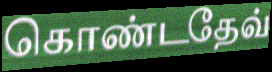
கொண்டதேவ்